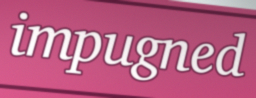
impugned